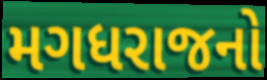
મગધરાજનો